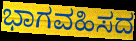
ಭಾಗವಹಿಸದ